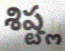
శిష్ట్ల